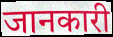
जानकारी